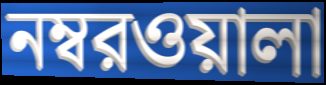
নম্বরওয়ালা